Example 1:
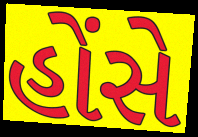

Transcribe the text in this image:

હોંસે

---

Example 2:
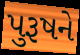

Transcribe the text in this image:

પુરૂષને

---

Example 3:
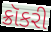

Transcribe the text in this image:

ક્રૉકરી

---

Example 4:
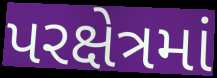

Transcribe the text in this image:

પરક્ષેત્રમાં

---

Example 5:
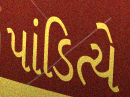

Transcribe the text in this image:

પાંડિત્યે